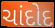
ચાંદોદ